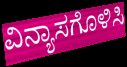
ವಿನ್ಯಾಸಗೊಳಿಸಿ